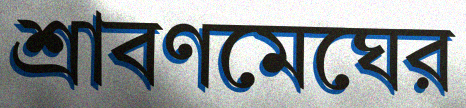
শ্রাবণমেঘের